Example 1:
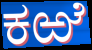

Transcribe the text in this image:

ಕಱೆ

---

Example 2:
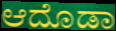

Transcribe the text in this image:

ಆದೊಡಾ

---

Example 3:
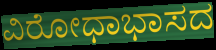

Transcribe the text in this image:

ವಿರೋಧಾಭಾಸದ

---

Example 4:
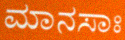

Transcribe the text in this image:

ಮಾನಸಾಃ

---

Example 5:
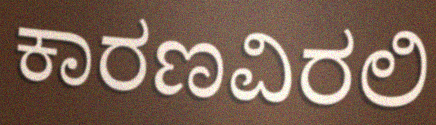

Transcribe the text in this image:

ಕಾರಣವಿರಲಿ